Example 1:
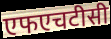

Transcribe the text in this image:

एफएचटीसी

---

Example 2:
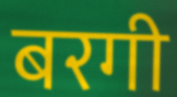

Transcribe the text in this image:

बरगी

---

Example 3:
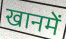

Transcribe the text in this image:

खानमें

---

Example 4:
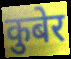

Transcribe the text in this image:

कुबेर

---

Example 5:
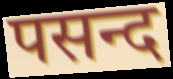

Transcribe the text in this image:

पसन्द